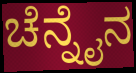
ಚೆನ್ನೈನ